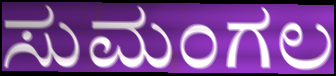
ಸುಮಂಗಲ